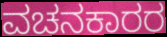
ವಚನಕಾರರ